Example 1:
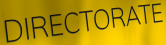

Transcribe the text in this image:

DIRECTORATE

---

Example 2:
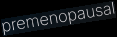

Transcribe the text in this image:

premenopausal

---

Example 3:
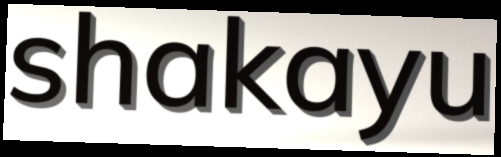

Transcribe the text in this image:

shakayu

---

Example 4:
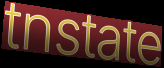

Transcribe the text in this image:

tnstate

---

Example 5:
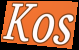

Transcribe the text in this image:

Kos